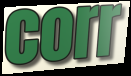
corr